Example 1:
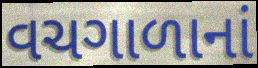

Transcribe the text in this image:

વચગાળાનાં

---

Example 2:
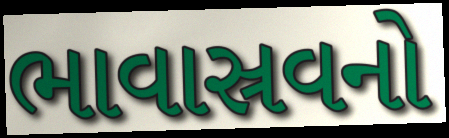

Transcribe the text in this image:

ભાવાસ્રવનો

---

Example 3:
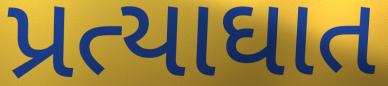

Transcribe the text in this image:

પ્રત્યાઘાત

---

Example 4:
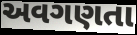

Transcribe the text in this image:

અવગણતા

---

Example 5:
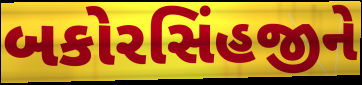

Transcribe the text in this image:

બકોરસિંહજીને